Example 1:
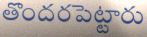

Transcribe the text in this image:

తొందరపెట్టారు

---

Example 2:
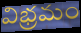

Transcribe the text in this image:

విభ్రమం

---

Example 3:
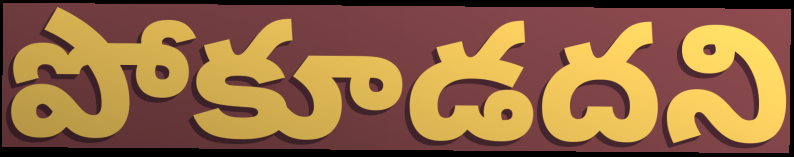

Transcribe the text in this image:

పోకూడదని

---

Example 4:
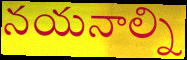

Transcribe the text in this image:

నయనాల్ని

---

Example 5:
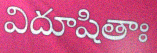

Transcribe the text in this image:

విదూషితాః